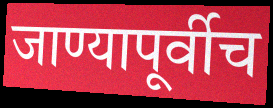
जाण्यापूर्वीच